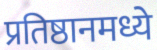
प्रतिष्ठानमध्ये